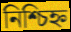
নিশ্চিহ্ন